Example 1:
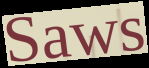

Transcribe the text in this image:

Saws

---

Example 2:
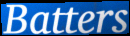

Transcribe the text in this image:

Batters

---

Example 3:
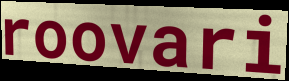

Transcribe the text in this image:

roovari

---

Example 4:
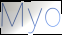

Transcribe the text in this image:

Myo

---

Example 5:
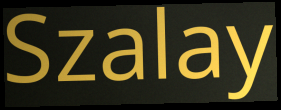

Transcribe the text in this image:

Szalay